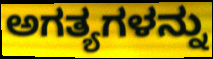
ಅಗತ್ಯಗಳನ್ನು